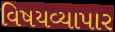
વિષયવ્યાપાર